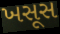
ખસૂસ